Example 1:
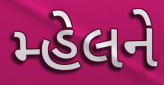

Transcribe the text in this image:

મ્હેલને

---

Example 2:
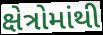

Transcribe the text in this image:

ક્ષેત્રોમાંથી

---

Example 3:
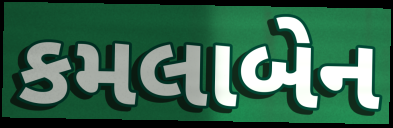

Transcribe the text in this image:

કમલાબેન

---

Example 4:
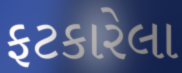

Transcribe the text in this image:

ફટકારેલા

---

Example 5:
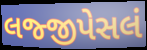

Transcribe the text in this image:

લજ્જીપેસલં